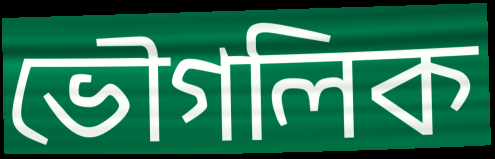
ভৌগলিক